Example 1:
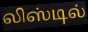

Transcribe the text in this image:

லிஸ்டில்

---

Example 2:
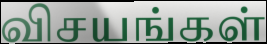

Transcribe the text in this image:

விசயங்கள்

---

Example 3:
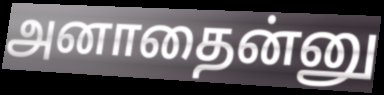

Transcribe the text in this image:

அனாதைன்னு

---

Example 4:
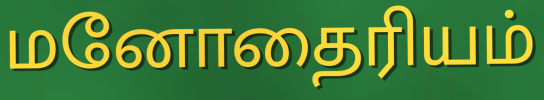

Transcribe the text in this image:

மனோதைரியம்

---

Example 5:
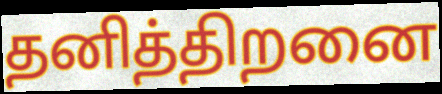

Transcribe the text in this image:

தனித்திறனை